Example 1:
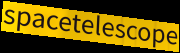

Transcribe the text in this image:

spacetelescope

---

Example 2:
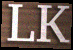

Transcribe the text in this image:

LK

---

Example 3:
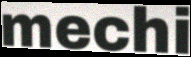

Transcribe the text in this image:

mechi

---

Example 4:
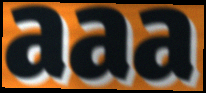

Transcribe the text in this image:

aaa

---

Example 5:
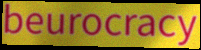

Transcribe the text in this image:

beurocracy